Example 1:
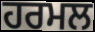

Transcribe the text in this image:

ਹਰਮਲ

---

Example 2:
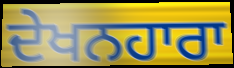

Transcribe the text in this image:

ਦੇਖਨਹਾਰਾ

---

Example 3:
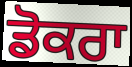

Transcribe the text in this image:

ਡੋਕਰਾ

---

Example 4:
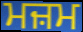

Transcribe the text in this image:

ਮਜ਼ਮ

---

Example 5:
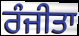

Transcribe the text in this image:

ਰੰਜੀਤਾ